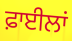
ਫ਼ਾਈਲਾਂ